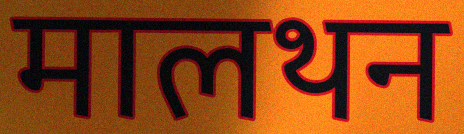
मालथन